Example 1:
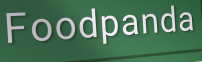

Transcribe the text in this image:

Foodpanda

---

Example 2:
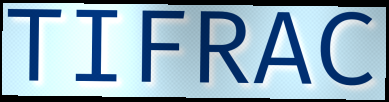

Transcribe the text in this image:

TIFRAC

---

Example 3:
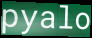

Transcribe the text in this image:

pyalo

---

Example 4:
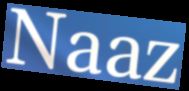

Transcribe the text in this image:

Naaz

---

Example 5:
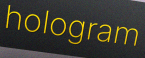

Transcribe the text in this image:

hologram